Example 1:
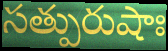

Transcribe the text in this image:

సత్పురుషాః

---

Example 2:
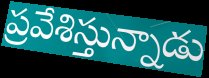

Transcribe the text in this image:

ప్రవేశిస్తున్నాడు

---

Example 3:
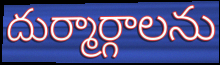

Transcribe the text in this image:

దుర్మార్గాలను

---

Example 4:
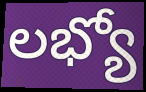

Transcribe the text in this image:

లభ్యో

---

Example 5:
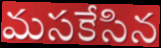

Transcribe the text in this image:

మసకేసిన